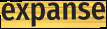
expanse